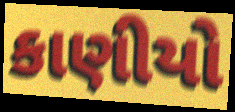
કાણીયો